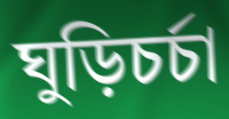
ঘুড়িচর্চা